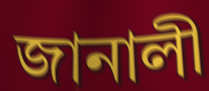
জানালী